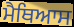
ਮੈਥਿਆਸ